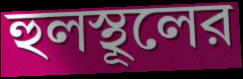
হুলস্থূলের